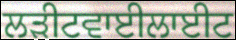
ਲੜੀਟਵਾਈਲਾਈਟ